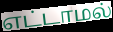
எட்டாமல்